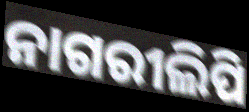
ନାଗରୀଲିପି